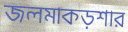
জলমাকড়শার